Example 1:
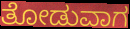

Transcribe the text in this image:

ತೋಡುವಾಗ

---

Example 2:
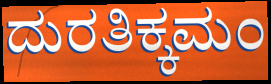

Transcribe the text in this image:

ದುರತಿಕ್ಕಮಂ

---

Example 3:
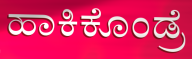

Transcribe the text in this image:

ಹಾಕಿಕೊಂಡ್ರೆ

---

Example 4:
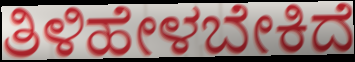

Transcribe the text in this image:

ತಿಳಿಹೇಳಬೇಕಿದೆ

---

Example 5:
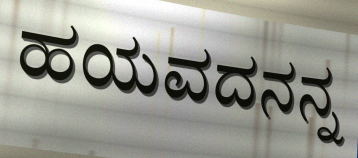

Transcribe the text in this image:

ಹಯವದನನ್ನ